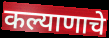
कल्याणाचे